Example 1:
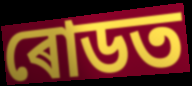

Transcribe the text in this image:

ৰোডত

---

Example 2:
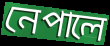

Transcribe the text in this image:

নেপালে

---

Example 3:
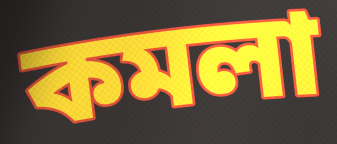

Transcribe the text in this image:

কমলা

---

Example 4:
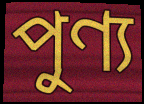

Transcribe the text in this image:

পুণ্য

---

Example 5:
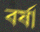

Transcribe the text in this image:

বৰ্ষা